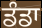
ਡੰਡਾ